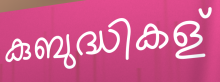
കുബുദ്ധികള്